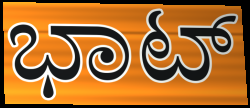
ಭಾಟ್